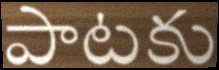
పాటకు